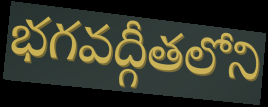
భగవద్గీతలోని